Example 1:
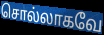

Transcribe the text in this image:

சொல்லாகவே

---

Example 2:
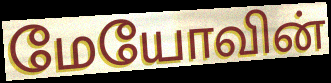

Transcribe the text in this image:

மேயோவின்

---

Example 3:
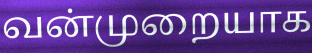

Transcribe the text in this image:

வன்முறையாக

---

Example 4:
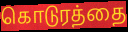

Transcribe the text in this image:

கொடுரத்தை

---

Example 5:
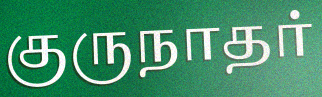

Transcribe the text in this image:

குருநாதர்